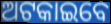
ଅଟକାଇବେ